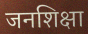
जनशिक्षा